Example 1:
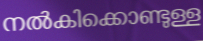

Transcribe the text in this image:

നൽകിക്കൊണ്ടുള്ള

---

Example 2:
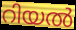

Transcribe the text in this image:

റിയൽ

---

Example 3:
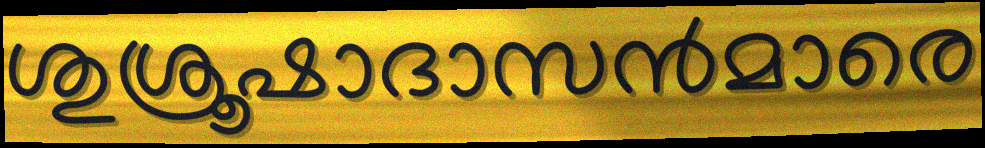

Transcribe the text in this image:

ശുശ്രൂഷാദാസൻമാരെ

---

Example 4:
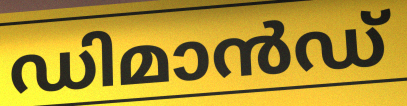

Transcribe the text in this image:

ഡിമാൻഡ്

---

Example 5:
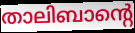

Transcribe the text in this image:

താലിബാന്റെ